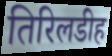
तिरिलडीह